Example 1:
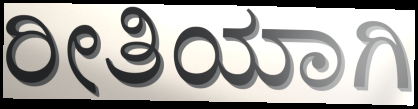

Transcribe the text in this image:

ರೀತಿಯಾಗಿ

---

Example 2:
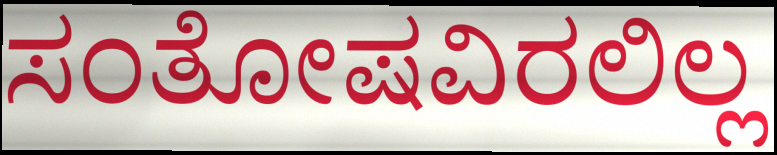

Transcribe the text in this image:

ಸಂತೋಷವಿರಲಿಲ್ಲ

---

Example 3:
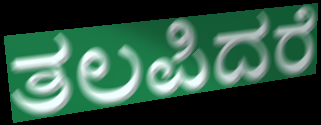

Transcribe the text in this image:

ತಲಪಿದರೆ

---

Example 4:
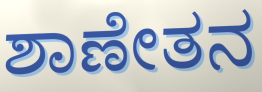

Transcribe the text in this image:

ಶಾಣೇತನ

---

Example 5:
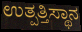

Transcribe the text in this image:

ಉತ್ಪತ್ತಿಸ್ಥಾನ